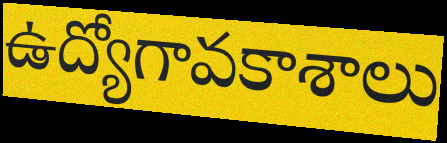
ఉద్యోగావకాశాలు